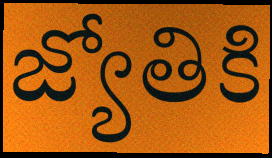
జ్యోతికి